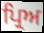
ਪ੍ਰਿਅ